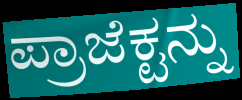
ಪ್ರಾಜೆಕ್ಟನ್ನು